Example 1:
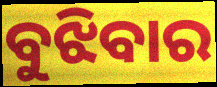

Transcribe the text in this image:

ବୁଝିବାର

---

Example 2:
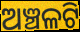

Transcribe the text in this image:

ଅଞ୍ଚଳଟି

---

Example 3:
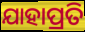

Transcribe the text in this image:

ଯାହାପ୍ରତି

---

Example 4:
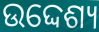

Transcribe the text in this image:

ଉଦ୍ଦେଶ୍ୟ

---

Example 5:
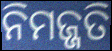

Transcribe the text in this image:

ନିମଜ୍ଜତି